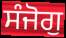
ਸੰਜੋਗੁ